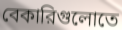
বেকারিগুলোতে